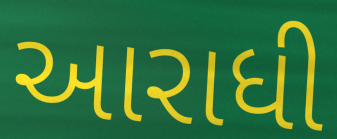
આરાધી